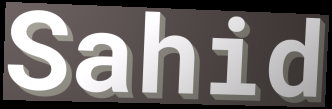
Sahid